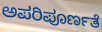
ಅಪರಿಪೂರ್ಣತೆ